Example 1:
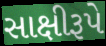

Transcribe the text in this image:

સાક્ષીરૂપે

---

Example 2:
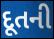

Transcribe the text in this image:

દૂતની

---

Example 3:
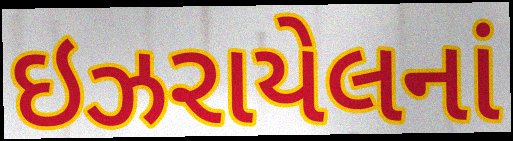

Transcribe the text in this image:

ઇઝરાયેલનાં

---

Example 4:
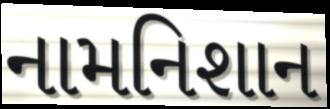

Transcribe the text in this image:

નામનિશાન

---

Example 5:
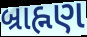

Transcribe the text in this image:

બ્રાહ્નણ